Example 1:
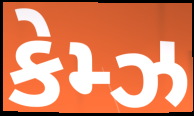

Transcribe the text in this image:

કેમ્ઝ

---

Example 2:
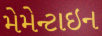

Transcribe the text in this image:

મેમેન્ટાઇન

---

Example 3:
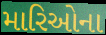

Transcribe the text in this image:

મારિઓના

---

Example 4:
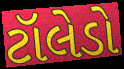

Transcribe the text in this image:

ટૉલેડો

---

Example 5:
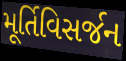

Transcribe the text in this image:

મૂર્તિવિસર્જન